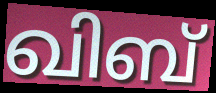
ഖിബ്